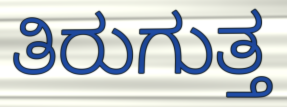
ತಿರುಗುತ್ತ